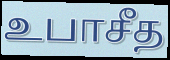
உபாசீத